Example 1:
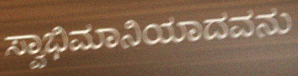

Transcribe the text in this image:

ಸ್ವಾಭಿಮಾನಿಯಾದವನು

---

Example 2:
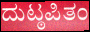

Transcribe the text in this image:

ದುಟ್ಠಪಿತಂ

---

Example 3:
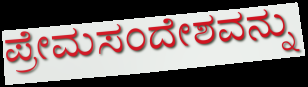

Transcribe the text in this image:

ಪ್ರೇಮಸಂದೇಶವನ್ನು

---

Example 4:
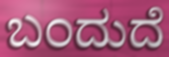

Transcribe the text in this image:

ಬಂದುದೆ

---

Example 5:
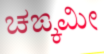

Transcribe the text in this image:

ಚಙ್ಕಮೀ